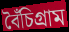
বৈঁচিগ্রাম